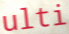
ulti